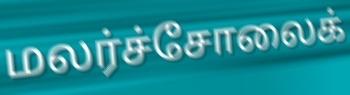
மலர்ச்சோலைக்